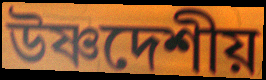
উষ্ণদেশীয়